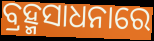
ବ୍ରହ୍ମସାଧନାରେ